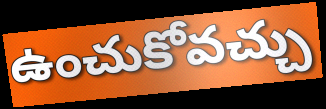
ఉంచుకోవచ్చు